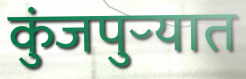
कुंजपुऱ्यात